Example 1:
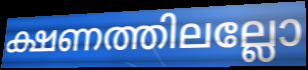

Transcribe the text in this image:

ക്ഷണത്തിലല്ലോ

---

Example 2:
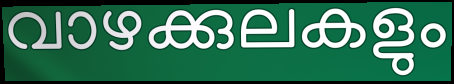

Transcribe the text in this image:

വാഴക്കുലകളും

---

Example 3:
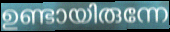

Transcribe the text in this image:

ഉണ്ടായിരുന്നേ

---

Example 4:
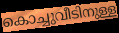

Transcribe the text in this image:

കൊച്ചുവീടിനുള്ള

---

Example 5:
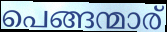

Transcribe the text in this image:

പെങ്ങന്മാര്